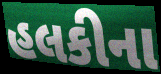
હલકીના